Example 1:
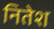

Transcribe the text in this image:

नितेश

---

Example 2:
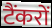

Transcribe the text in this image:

टैंकरों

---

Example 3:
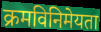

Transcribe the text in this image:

क्रमविनिमेयता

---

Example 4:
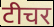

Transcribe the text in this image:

टीचर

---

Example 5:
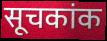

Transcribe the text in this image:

सूचकांक